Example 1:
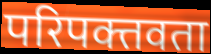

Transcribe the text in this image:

परिपक्तवता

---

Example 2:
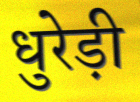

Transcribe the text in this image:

धुरेड़ी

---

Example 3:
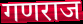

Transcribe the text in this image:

गणराज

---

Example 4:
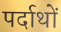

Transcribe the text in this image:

पर्दाथों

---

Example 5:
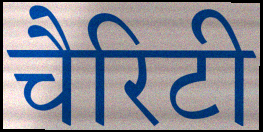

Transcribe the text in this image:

चैरिटी